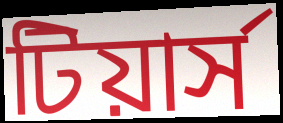
টিয়ার্স